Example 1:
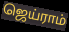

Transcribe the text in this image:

ஜெய்ராம்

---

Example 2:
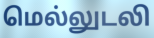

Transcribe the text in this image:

மெல்லுடலி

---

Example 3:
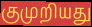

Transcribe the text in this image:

குமுறியது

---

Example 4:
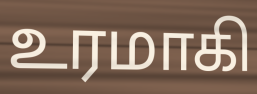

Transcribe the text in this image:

உரமாகி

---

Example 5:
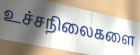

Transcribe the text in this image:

உச்சநிலைகளை